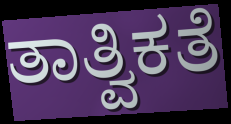
ತಾತ್ವಿಕತೆ